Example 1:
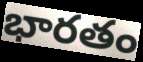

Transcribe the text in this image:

భారతం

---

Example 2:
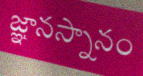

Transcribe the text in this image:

జ్ఞానస్నానం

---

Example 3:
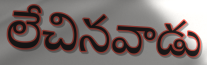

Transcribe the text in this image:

లేచినవాడు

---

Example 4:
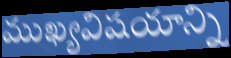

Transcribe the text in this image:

ముఖ్యవిషయాన్ని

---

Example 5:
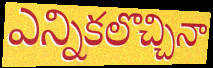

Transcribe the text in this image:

ఎన్నికలొచ్చినా